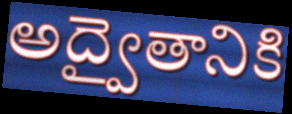
అద్వైతానికి